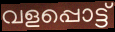
വളപ്പൊട്ട്